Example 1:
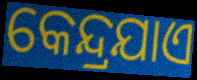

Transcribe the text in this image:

କେନ୍ଦ୍ରଯାଏ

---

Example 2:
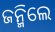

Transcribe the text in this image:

ଜନ୍ମିଲେ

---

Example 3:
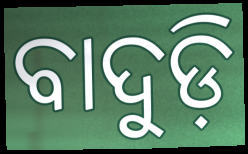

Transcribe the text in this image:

ବାଦୁଡ଼ି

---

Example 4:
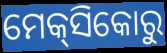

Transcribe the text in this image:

ମେକ୍‌ସିକୋରୁ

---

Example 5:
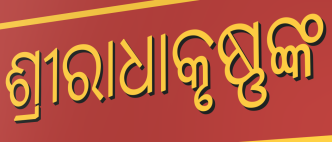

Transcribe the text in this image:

ଶ୍ରୀରାଧାକୃଷ୍ଣଙ୍କ